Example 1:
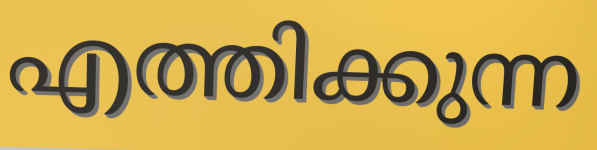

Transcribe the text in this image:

എത്തിക്കുന്ന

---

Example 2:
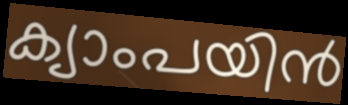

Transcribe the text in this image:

ക്യാംപയിൻ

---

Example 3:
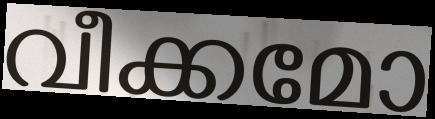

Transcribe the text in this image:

വീക്കമോ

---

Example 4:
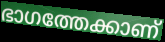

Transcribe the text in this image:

ഭാഗത്തേക്കാണ്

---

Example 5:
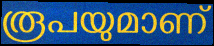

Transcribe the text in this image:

രൂപയുമാണ്